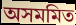
অসমমিত